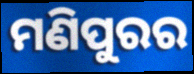
ମଣିପୁରର